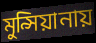
মুন্সিয়ানায়